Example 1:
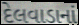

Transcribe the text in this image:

દેલવાડાનાં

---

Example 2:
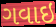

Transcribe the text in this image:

ગવાઇ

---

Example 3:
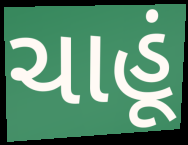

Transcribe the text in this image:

ચાહૂં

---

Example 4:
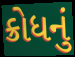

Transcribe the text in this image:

ક્રોધનું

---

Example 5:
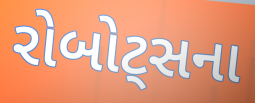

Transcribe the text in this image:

રોબોટ્સના